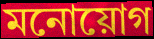
মনোয়োগ